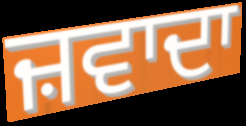
ਜ਼ਵਾਦਾ